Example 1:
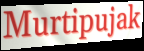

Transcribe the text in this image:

Murtipujak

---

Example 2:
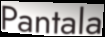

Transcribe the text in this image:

Pantala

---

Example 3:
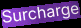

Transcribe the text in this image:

Surcharge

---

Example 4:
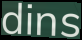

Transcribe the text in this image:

dins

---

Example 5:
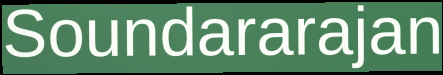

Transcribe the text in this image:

Soundararajan